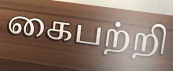
கைபற்றி